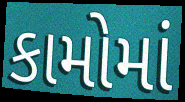
કામોમાં